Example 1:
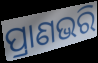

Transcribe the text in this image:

ପ୍ରାଣଭରି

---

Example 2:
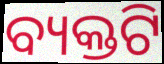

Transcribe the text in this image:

ବ୍ୟକ୍ତଟି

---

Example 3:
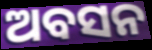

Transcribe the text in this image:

ଅବସନ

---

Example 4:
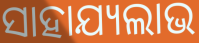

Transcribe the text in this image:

ସାହାଯ୍ୟଲାଭ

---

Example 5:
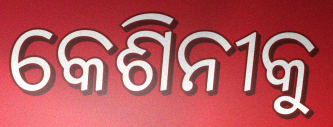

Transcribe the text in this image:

କେଶିନୀକୁ